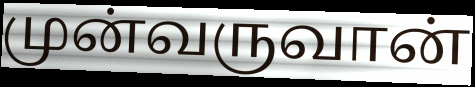
முன்வருவான்